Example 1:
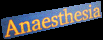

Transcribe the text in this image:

Anaesthesia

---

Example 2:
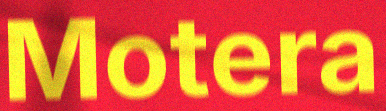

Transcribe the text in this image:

Motera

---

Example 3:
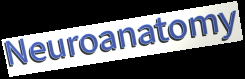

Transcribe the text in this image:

Neuroanatomy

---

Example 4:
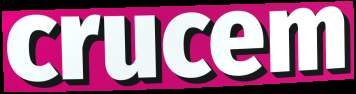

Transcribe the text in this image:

crucem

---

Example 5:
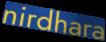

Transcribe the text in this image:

nirdhara